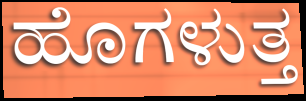
ಹೊಗಳುತ್ತ